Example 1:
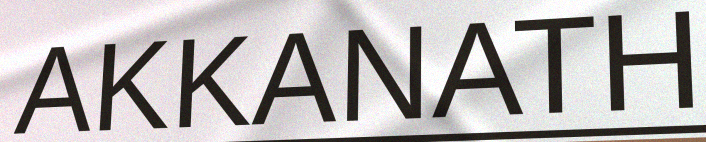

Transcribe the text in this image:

AKKANATH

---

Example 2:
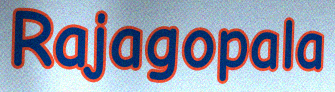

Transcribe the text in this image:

Rajagopala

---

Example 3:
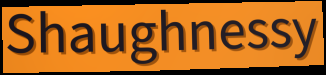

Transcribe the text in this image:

Shaughnessy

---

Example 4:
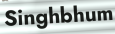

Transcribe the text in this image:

Singhbhum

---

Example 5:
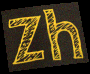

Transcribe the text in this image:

Zh